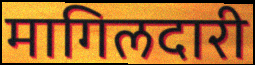
मागिलदारी